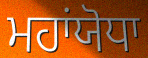
ਮਹਾਂਯੋਧਾ